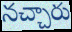
నచ్చారు